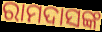
ରାମଦାସଙ୍କ